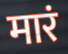
मारं